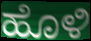
ಹೊಳಿ